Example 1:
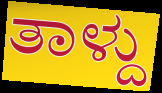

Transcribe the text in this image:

ತಾಳ್ದು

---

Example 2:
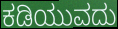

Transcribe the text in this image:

ಕಡಿಯುವದು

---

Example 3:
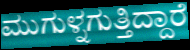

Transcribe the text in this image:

ಮುಗುಳ್ನಗುತ್ತಿದ್ದಾರೆ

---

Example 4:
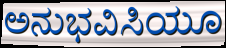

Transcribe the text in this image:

ಅನುಭವಿಸಿಯೂ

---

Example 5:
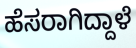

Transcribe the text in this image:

ಹೆಸರಾಗಿದ್ದಾಳೆ